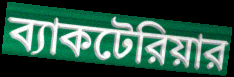
ব্যাকটেরিয়ার